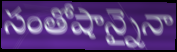
సంతోషాన్నైనా